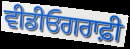
ਵੀਡੀਓਗਰਾਫ਼ੀ